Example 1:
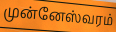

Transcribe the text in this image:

முன்னேஸ்வரம்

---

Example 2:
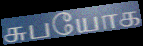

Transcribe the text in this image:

சுபயோக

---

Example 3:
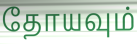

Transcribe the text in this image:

தோயவும்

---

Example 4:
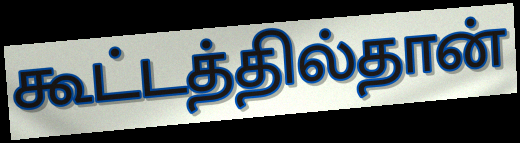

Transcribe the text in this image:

கூட்டத்தில்தான்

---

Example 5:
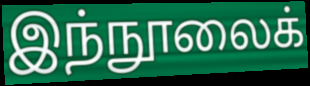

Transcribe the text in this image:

இந்நூலைக்